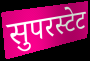
सुपरस्टेट